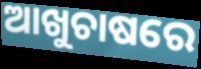
ଆଖୁଚାଷରେ